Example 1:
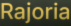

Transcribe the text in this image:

Rajoria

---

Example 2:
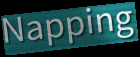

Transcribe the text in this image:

Napping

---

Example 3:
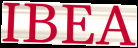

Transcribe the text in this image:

IBEA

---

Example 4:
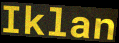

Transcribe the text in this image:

Iklan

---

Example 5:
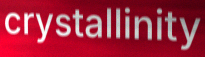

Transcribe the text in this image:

crystallinity